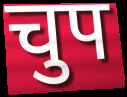
चुप